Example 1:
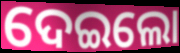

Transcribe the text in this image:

ଦେଇଲୋ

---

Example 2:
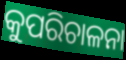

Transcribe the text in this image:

କୁପରିଚାଳନା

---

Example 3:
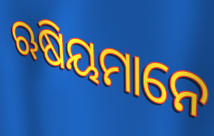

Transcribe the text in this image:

ଋଷିୟମାନେ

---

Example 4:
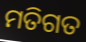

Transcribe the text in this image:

ମତିଗତ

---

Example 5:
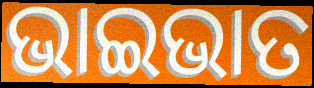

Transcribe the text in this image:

ଭାଇଭାତ